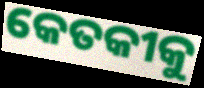
କେତକୀକୁ